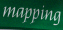
mapping